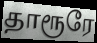
தாரூரே